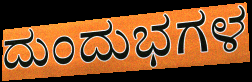
ದುಂದುಭಗಳ